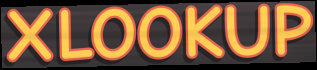
XLOOKUP